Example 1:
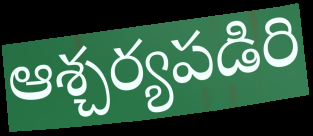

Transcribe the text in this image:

ఆశ్చర్యపడిరి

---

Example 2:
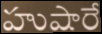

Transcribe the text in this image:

హుషారే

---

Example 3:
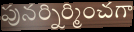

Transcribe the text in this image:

పునర్నిర్మించగా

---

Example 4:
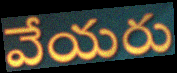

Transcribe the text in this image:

వేయరు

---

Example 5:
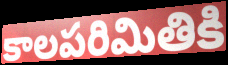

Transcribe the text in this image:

కాలపరిమితికి